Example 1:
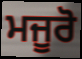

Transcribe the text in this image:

ਮਜੂਰੋ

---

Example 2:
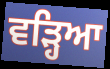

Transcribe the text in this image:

ਵੜ੍ਹਿਆ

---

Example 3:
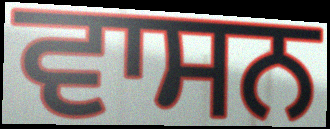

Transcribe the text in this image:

ਵਾਸਨ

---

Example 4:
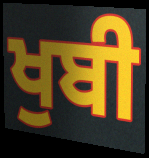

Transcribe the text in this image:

ਖੁਬੀ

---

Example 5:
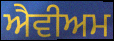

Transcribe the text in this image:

ਐਵੀਅਮ